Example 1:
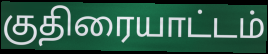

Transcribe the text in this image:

குதிரையாட்டம்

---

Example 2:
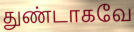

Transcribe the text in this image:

துண்டாகவே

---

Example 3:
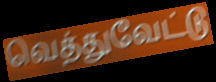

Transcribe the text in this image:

வெத்துவேட்டு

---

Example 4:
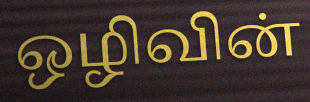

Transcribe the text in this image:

ஒழிவின்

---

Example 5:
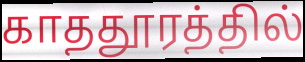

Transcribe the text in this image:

காததூரத்தில்